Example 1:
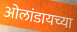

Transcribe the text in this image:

ओलांडायच्या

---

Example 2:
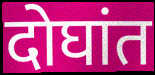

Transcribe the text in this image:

दोघांत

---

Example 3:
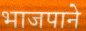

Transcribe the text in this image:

भाजपाने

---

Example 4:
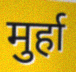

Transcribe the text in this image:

मुर्हा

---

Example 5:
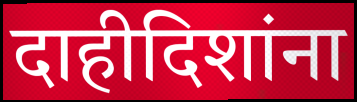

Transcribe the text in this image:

दाहीदिशांना